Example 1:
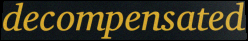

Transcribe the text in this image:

decompensated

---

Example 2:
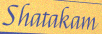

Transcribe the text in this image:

Shatakam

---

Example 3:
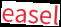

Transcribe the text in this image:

easel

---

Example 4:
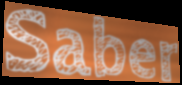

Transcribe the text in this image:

Saber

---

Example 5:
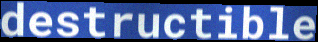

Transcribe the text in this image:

destructible